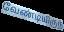
வேண்டியிருந்